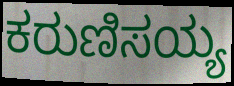
ಕರುಣಿಸಯ್ಯ